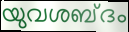
യുവശബ്ദം